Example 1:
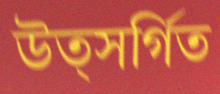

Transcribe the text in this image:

উত্সর্গিত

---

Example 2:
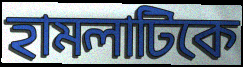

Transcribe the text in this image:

হামলাটিকে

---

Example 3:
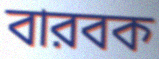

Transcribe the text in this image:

বারবক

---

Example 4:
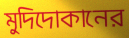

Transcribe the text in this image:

মুদিদোকানের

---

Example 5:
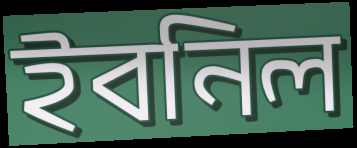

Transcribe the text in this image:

ইবনিল